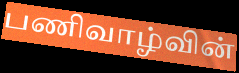
பணிவாழ்வின்